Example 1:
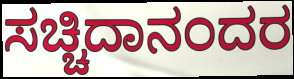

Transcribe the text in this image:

ಸಚ್ಚಿದಾನಂದರ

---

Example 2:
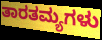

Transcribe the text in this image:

ತಾರತಮ್ಯಗಳು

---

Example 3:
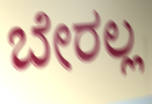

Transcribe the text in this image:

ಬೇರಲ್ಲ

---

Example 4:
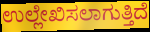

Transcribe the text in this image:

ಉಲ್ಲೇಖಿಸಲಾಗುತ್ತಿದೆ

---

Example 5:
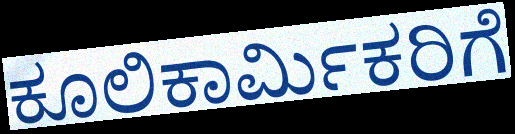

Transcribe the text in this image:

ಕೂಲಿಕಾರ್ಮಿಕರಿಗೆ